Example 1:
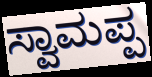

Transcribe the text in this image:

ಸ್ವಾಮಪ್ಪ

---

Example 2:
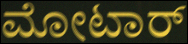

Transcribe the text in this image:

ಮೋಟಾರ್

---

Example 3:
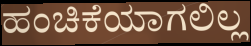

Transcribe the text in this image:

ಹಂಚಿಕೆಯಾಗಲಿಲ್ಲ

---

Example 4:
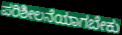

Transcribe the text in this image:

ಪರಿಶೀಲನೆಯಾಗಬೇಕು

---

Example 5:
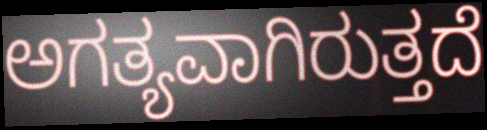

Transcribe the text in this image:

ಅಗತ್ಯವಾಗಿರುತ್ತದೆ